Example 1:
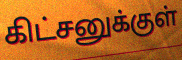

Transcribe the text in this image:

கிட்சனுக்குள்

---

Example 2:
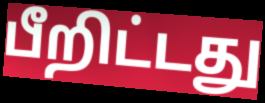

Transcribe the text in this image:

பீறிட்டது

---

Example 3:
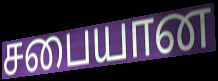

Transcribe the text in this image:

சபையான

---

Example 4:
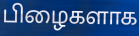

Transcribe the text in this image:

பிழைகளாக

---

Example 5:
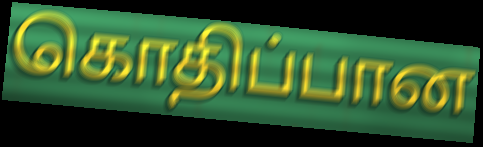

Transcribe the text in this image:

கொதிப்பான